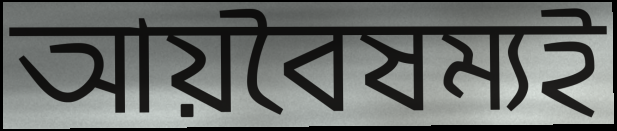
আয়বৈষম্যই